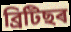
ব্ৰিটিছৰ